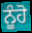
ਨੂੰਹੋ